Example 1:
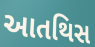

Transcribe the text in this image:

આતથિસ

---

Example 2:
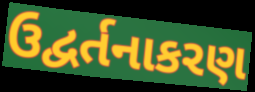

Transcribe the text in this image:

ઉદ્વર્તનાકરણ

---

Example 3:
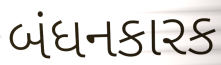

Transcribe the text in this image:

બંધનકારક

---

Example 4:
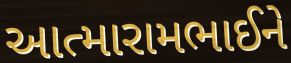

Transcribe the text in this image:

આત્મારામભાઈને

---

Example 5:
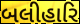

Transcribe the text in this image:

બલીહારિ